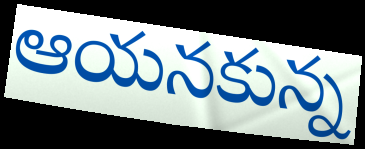
ఆయనకున్న